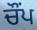
ਚੌਂਪ